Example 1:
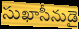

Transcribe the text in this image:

సుఖాసీనుడై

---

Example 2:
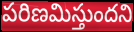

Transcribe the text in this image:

పరిణమిస్తుందని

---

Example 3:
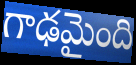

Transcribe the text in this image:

గాఢమైంది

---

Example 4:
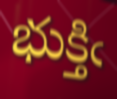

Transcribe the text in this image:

భుక్తిఁ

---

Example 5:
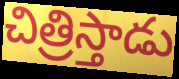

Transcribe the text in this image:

చిత్రిస్తాడు